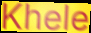
Khele